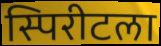
स्पिरीटला